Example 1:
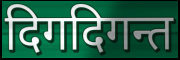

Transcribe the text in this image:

दिगदिगन्त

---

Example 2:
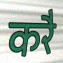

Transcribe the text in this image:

करै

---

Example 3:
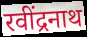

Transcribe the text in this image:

रवींद्रनाथ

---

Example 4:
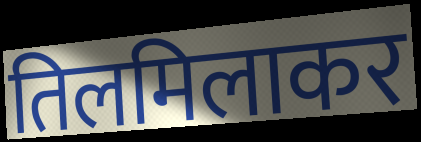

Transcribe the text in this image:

तिलमिलाकर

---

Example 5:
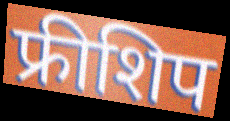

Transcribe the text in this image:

फ्रीशिप